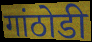
गांठोडी